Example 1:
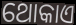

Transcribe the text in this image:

ଥୋକାଏ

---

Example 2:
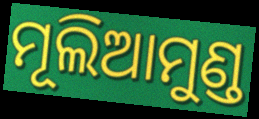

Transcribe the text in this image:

ମୂଲିଆମୁଣ୍ଡ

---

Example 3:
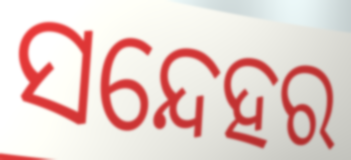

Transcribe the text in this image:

ସନ୍ଦେହର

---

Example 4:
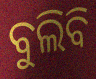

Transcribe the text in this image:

ବୁଲିବି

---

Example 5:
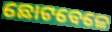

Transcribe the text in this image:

ଛୋଟବେଳେ